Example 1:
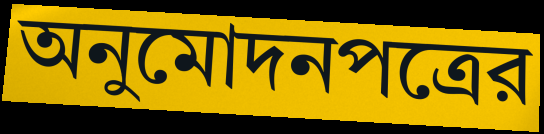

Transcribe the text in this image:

অনুমোদনপত্রের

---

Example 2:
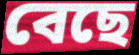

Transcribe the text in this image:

বেছে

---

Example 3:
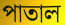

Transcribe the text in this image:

পাতাল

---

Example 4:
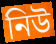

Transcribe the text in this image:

নিউ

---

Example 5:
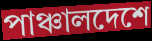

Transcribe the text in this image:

পাঞ্চালদেশে